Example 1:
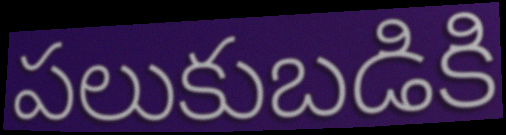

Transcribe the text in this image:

పలుకుబడికి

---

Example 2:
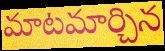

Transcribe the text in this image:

మాటమార్చిన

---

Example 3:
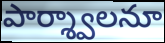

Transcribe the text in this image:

పార్శ్వాలనూ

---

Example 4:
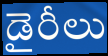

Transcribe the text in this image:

డైరీలు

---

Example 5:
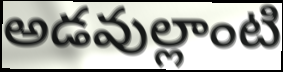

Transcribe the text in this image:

అడవుల్లాంటి